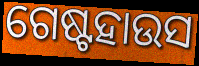
ଗେଷ୍ଟହାଉସ